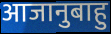
आजानुबाहु